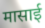
मासाई